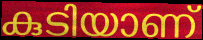
കുടിയാണ്